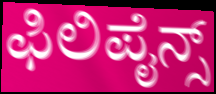
ಫಿಲಿಪೈನ್ಸ್